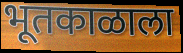
भूतकाळाला